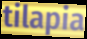
tilapia